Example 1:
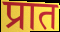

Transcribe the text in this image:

प्रात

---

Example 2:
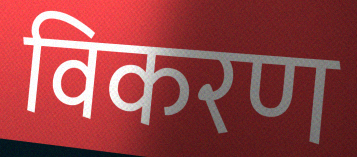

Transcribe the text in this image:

विकरण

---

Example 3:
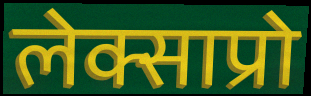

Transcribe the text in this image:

लेक्साप्रो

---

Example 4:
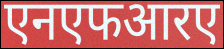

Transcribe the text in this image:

एनएफआरए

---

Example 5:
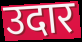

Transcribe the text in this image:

उदार